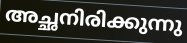
അച്ഛനിരിക്കുന്നു